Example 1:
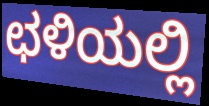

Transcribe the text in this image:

ಛಳಿಯಲ್ಲಿ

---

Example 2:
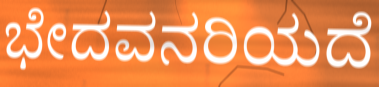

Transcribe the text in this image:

ಭೇದವನರಿಯದೆ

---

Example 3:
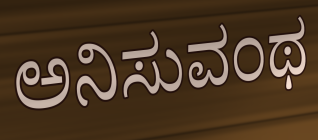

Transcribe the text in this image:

ಅನಿಸುವಂಥ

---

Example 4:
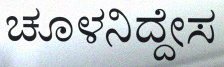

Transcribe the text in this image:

ಚೂಳನಿದ್ದೇಸ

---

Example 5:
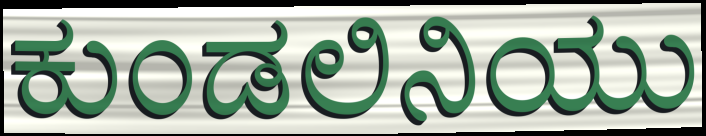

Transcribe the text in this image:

ಕುಂಡಲಿನಿಯು